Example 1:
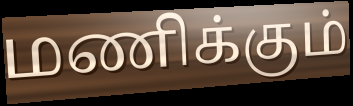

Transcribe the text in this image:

மணிக்கும்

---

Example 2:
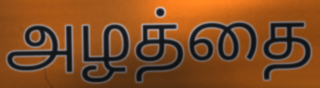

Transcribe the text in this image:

அழத்தை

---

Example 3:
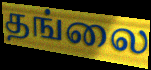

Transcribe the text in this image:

தங்லை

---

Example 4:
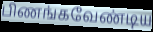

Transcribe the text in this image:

பிணங்கவேண்டிய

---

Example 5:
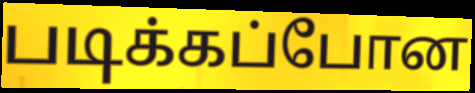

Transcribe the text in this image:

படிக்கப்போன